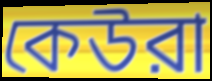
কেউরা